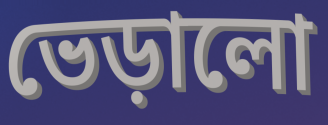
ভেড়ালো